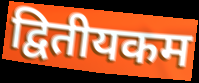
द्वितीयकम